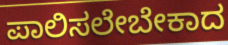
ಪಾಲಿಸಲೇಬೇಕಾದ